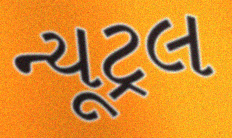
ન્યૂટ્રલ